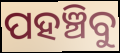
ପହଞ୍ଚିବୁ